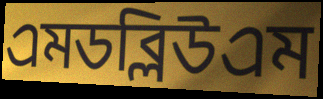
এমডব্লিউএম